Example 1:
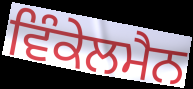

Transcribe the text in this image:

ਵਿੰਕੇਲਮੈਨ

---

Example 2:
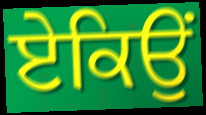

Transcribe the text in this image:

ਏਕਿਉਂ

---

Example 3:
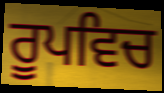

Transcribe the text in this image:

ਰੂਪਵਿਚ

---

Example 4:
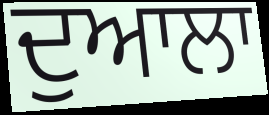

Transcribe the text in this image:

ਦੁਆਲਾ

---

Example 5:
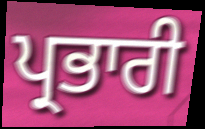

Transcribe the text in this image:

ਪ੍ਰਭਾਰੀ